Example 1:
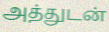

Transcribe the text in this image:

அத்துடன்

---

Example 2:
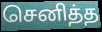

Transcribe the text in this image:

செனித்த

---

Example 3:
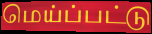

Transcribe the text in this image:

மெய்ப்பட்டு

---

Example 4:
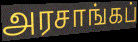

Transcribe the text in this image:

அரசாங்கப்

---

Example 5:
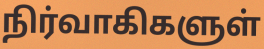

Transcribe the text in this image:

நிர்வாகிகளுள்